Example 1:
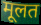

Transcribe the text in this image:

मूलत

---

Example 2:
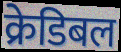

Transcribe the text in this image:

क्रेडिबल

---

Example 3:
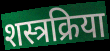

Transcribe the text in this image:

शस्त्रक्रिया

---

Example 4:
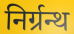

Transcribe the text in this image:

निर्ग्रन्थ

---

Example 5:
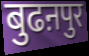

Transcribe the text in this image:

बुढऩपुर